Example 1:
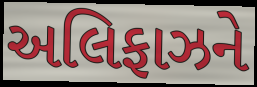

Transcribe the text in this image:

અલિફાઝને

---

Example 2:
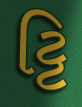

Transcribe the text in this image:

ટ્ટિ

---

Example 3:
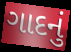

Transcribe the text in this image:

ગાદનું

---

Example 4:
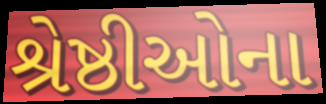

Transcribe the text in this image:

શ્રેષ્ઠીઓના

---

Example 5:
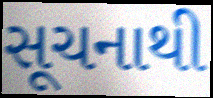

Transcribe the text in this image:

સૂચનાથી